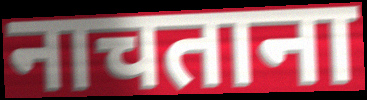
नाचताना